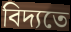
বিদ্যতে